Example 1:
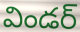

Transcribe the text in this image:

విండర్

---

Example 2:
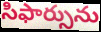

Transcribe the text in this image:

సిఫార్సును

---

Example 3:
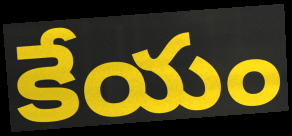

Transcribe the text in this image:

కేయం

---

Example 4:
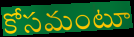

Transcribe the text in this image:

కోసమంటూ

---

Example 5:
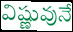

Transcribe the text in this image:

విష్ణువునే